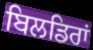
ਬਿਲਡਿਰਾਂ